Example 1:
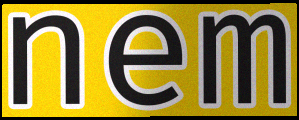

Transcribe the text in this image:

nem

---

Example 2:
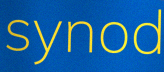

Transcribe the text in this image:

synod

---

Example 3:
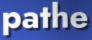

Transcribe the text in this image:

pathe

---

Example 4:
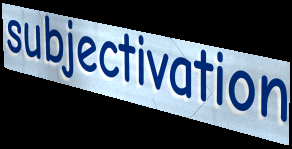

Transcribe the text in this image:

subjectivation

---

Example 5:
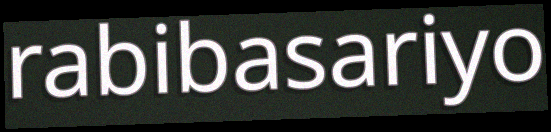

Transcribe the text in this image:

rabibasariyo